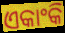
ଏକାଂକି